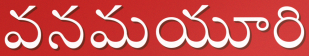
వనమయూరి